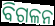
ବିଗଳନ